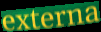
externa